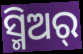
ସ୍ମିଅର୍